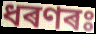
ধৰণৰঃ